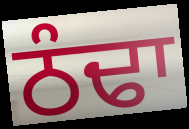
ਠੰਢਾ